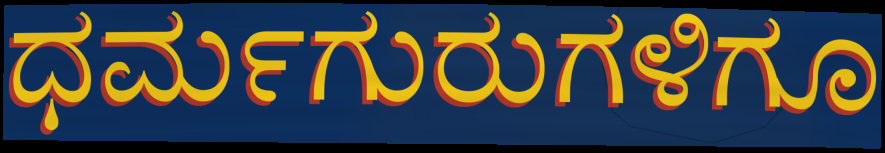
ಧರ್ಮಗುರುಗಳಿಗೂ